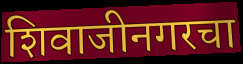
शिवाजीनगरचा